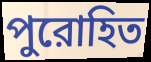
পুরোহিত